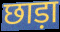
छाड़ा